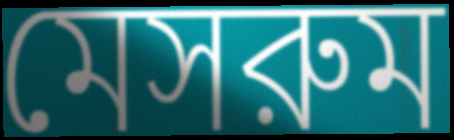
মেসরুম